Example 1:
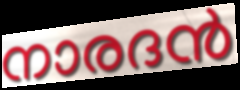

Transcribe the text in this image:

നാരദൻ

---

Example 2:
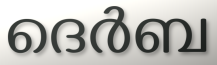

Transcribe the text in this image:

ദെർബ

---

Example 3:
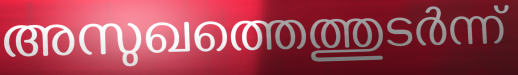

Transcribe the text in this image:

അസുഖത്തെത്തുടർന്ന്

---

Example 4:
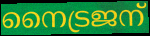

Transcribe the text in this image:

നൈട്രജന്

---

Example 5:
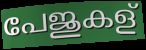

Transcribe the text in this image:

പേജുകള്